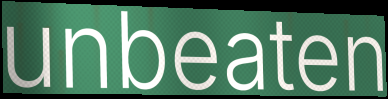
unbeaten